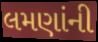
લમણાંની